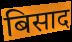
बिसाद